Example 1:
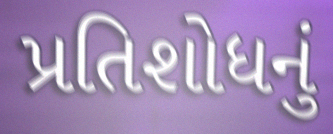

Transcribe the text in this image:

પ્રતિશોધનું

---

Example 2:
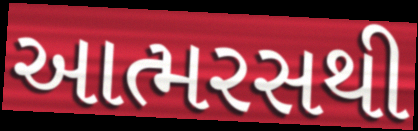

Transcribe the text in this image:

આત્મરસથી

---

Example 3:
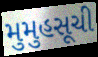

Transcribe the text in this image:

મુમુહસૂચી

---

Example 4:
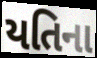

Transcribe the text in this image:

યતિના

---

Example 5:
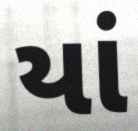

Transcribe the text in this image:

યાં